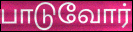
பாடுவோர்